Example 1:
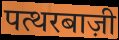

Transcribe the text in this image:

पत्थरबाज़ी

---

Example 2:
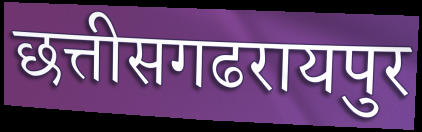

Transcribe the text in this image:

छत्तीसगढरायपुर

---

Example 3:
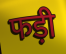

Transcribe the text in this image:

फड़ी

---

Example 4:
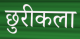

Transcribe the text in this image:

छुरीकला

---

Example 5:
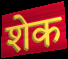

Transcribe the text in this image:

शेक